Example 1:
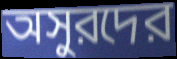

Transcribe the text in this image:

অসুরদের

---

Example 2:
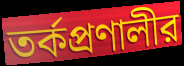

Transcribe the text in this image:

তর্কপ্রণালীর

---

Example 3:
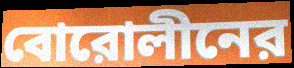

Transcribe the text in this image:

বোরোলীনের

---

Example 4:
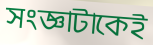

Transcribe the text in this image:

সংজ্ঞাটাকেই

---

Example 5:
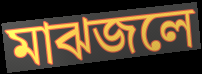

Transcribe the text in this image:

মাঝজলে